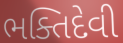
ભક્તિદેવી